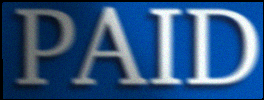
PAID